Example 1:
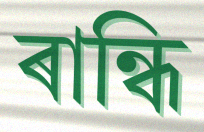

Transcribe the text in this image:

ৰান্ধি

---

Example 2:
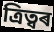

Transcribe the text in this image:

ত্ৰিত্বৰ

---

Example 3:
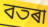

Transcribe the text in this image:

বতৰা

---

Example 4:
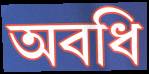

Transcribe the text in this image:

অবধি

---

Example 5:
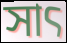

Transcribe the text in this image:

সাৎ